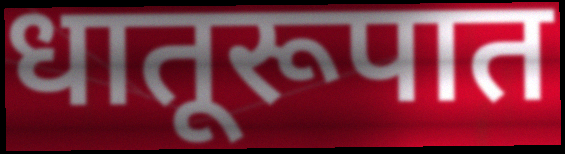
धातूरूपात